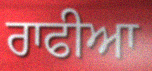
ਰਾਫੀਆ